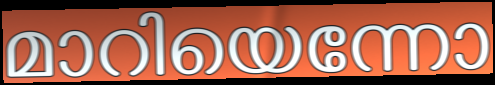
മാറിയെന്നോ